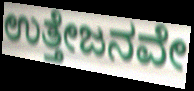
ಉತ್ತೇಜನವೇ